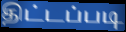
திட்டப்படி